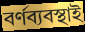
বর্ণব্যবস্থাই